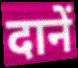
दानें